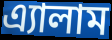
এ্যালাম